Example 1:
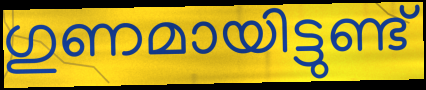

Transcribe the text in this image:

ഗുണമായിട്ടുണ്ട്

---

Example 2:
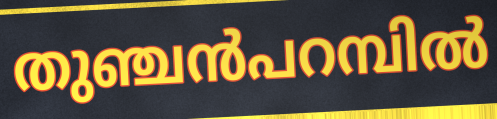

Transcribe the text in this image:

തുഞ്ചൻപറമ്പിൽ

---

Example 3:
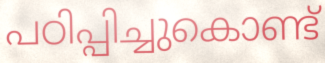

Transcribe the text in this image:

പഠിപ്പിച്ചുകൊണ്ട്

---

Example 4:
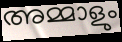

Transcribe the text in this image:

അമ്മാളും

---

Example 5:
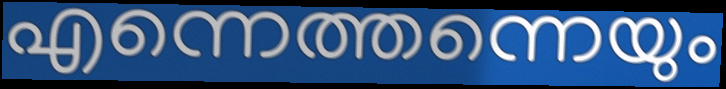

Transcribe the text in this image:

എന്നെത്തന്നെയും